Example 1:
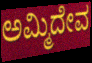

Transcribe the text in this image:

ಅಮ್ಮಿದೇವ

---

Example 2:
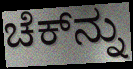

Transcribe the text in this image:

ಚೆಕ್‌ನ್ನು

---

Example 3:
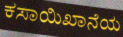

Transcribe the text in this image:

ಕಸಾಯಿಖಾನೆಯ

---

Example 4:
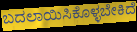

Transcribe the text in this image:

ಬದಲಾಯಿಸಿಕೊಳ್ಳಬೇಕಿದೆ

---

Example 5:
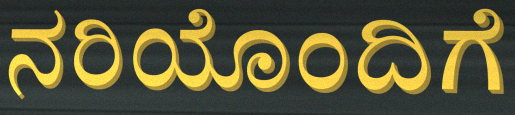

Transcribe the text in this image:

ನರಿಯೊಂದಿಗೆ